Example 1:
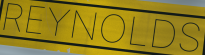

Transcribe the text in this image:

REYNOLDS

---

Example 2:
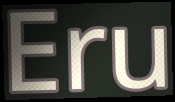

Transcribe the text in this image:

Eru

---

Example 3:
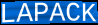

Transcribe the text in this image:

LAPACK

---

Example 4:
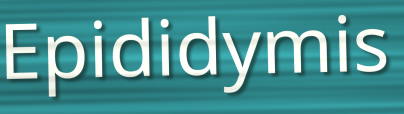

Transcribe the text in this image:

Epididymis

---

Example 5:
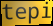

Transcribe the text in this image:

tepi